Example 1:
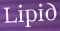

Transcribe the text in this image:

Lipid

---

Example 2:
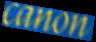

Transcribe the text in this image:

canon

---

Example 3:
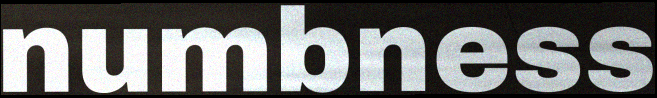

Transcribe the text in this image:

numbness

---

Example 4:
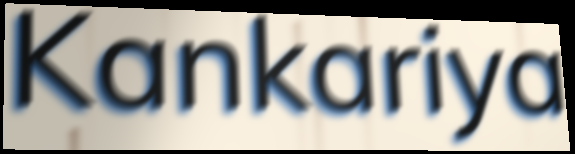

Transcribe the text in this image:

Kankariya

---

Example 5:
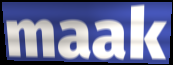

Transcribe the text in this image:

maak